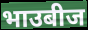
भाउबीज